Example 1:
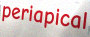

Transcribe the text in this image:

periapical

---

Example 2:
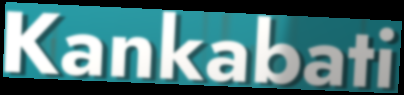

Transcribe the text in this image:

Kankabati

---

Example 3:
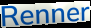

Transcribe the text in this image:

Renner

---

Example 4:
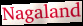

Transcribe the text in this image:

Nagaland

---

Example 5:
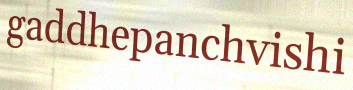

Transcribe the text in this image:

gaddhepanchvishi